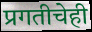
प्रगतीचेही